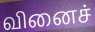
வினைச்